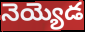
నెయ్యెడ